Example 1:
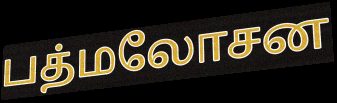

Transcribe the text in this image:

பத்மலோசன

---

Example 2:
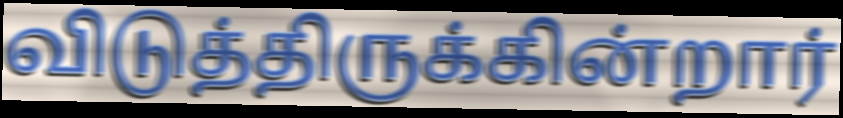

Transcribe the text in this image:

விடுத்திருக்கின்றார்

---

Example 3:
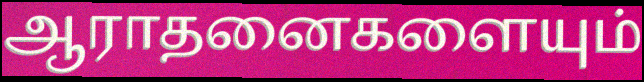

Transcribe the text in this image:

ஆராதனைகளையும்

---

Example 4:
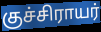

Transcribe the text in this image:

குச்சிராயர்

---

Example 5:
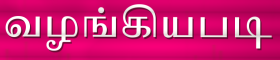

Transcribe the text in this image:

வழங்கியபடி